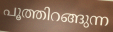
പൂത്തിറങ്ങുന്ന